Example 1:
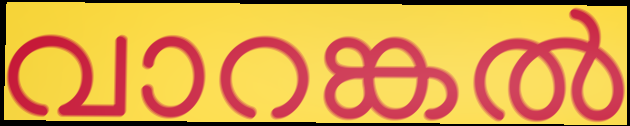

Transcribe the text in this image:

വാറങ്കൽ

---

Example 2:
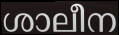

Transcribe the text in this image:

ശാലീന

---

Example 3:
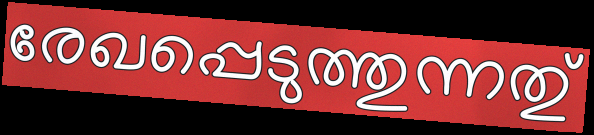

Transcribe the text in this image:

രേഖപ്പെടുത്തുന്നതു്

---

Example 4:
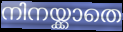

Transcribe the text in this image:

നിനയ്ക്കാതെ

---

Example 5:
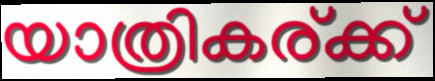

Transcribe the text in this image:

യാത്രികര്ക്ക്